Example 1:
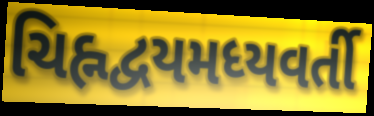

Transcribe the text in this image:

ચિહ્નદ્વયમધ્યવર્તી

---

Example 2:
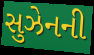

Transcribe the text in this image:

સુઝેનની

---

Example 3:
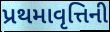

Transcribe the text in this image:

પ્રથમાવૃત્તિની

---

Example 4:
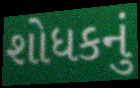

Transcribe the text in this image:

શોધકનું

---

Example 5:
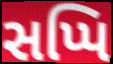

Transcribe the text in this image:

સપ્પિ